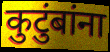
कुटुंबांना